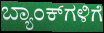
ಬ್ಯಾಂಕ್‌ಗಳಿಗೆ